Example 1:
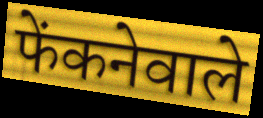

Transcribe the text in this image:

फेंकनेवाले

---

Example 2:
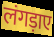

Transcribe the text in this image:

लंगड़ाए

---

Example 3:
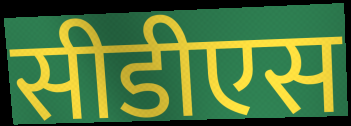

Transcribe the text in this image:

सीडीएस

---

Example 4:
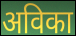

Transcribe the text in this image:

अविका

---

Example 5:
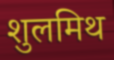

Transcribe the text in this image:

शुलमिथ